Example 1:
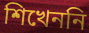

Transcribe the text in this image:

শিখেননি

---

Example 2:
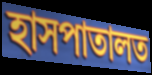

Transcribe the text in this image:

হাসপাতালত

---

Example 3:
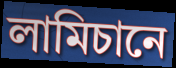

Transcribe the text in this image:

লামিচানে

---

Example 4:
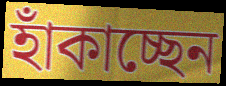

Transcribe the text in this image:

হাঁকাচ্ছেন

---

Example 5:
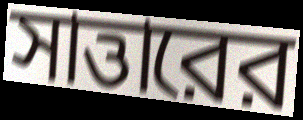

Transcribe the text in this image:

সাত্তারের